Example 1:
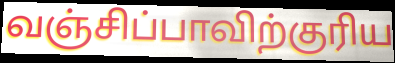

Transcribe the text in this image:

வஞ்சிப்பாவிற்குரிய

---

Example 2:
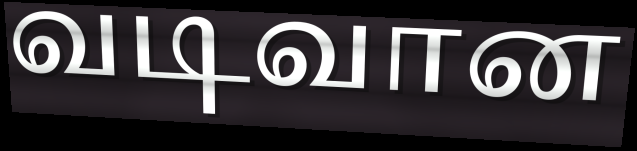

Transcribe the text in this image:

வடிவான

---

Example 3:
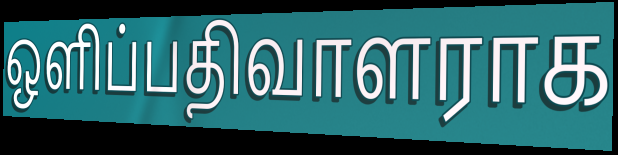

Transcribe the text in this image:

ஒளிப்பதிவாளராக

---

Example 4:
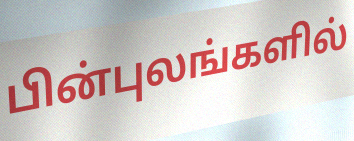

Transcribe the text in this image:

பின்புலங்களில்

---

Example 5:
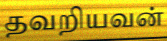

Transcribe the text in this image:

தவறியவன்